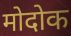
मोदोक